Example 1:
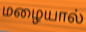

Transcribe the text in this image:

மழையால்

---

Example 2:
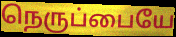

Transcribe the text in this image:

நெருப்பையே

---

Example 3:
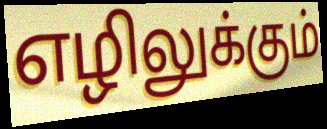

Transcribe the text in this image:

எழிலுக்கும்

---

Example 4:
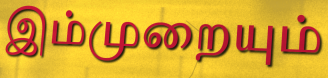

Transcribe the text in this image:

இம்முறையும்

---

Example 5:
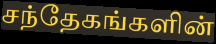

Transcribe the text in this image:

சந்தேகங்களின்